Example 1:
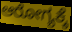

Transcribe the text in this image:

ಆರೋಗ್ಯಕ್ಕೆ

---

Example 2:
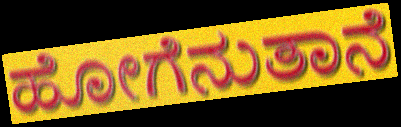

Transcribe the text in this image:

ಹೋಗೆನುತಾನೆ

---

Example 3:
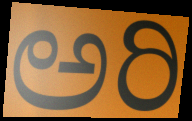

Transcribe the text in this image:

ಅರಿ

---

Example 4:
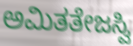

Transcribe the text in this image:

ಅಮಿತತೇಜಸ್ವಿ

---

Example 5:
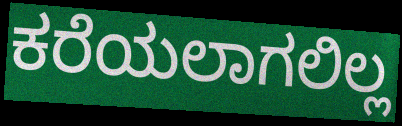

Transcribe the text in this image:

ಕರೆಯಲಾಗಲಿಲ್ಲ